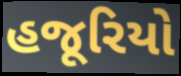
હજૂરિયો